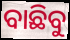
ବାଛିବୁ